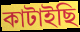
কাটাইছি